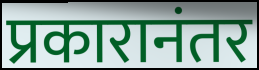
प्रकारानंतर